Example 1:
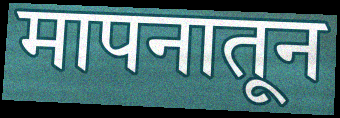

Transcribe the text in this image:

मापनातून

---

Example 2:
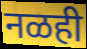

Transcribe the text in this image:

नळही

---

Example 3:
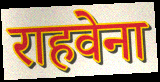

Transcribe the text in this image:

राहवेना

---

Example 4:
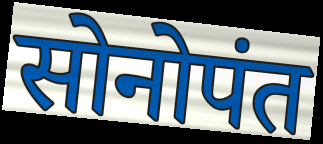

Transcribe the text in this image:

सोनोपंत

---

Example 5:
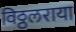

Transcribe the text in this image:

विठ्ठलराया